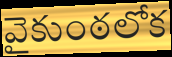
వైకుంఠలోక